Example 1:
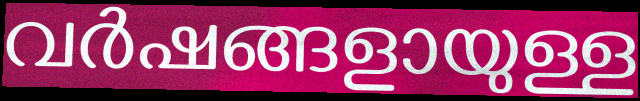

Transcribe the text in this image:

വർഷങ്ങളായുള്ള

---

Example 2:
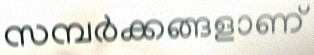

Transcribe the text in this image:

സമ്പർക്കങ്ങളാണ്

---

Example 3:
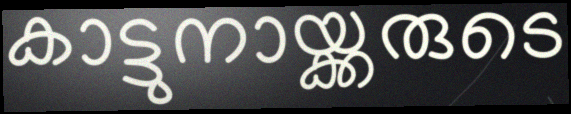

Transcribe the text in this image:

കാട്ടുനായ്ക്കരുടെ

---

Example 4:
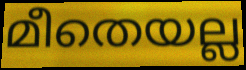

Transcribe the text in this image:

മീതെയല്ല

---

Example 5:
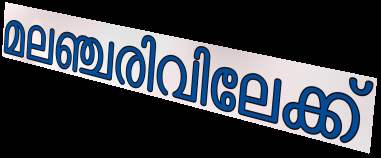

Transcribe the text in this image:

മലഞ്ചരിവിലേക്ക്